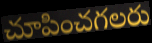
చూపించగలరు